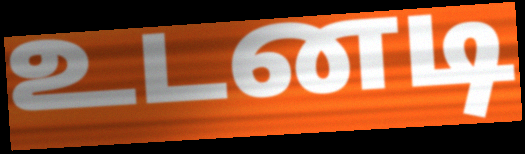
உடனடி